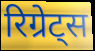
रिग्रेट्स